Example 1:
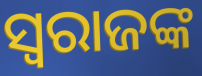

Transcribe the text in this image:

ସ୍ୱରାଜଙ୍କ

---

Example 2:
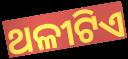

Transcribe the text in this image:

ଥଳୀଟିଏ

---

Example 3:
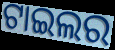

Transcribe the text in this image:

ଟାଇଲର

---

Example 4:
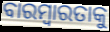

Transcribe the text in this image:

ବାରମ୍ବାରତାକୁ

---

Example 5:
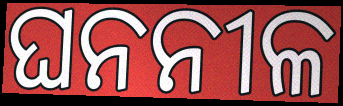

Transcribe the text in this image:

ଘନନୀଳ